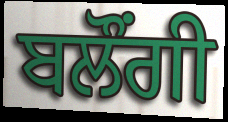
ਬਲੌਂਗੀ